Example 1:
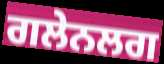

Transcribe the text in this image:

ਗਲੇਨਲਗ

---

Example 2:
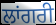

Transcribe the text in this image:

ਲਾਂਗਰੀ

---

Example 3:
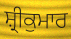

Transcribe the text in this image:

ਸ਼੍ਰੀਕੁਮਾਰ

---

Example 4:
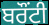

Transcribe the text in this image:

ਬਰੌਂਟੀ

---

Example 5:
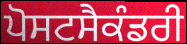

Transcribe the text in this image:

ਪੋਸਟਸੈਕੰਡਰੀ